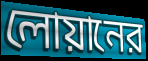
লোয়ানের